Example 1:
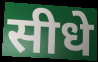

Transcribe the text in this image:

सीधे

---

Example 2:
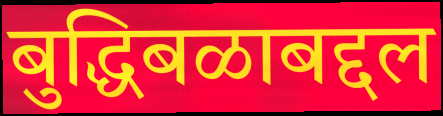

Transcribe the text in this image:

बुद्धिबळाबद्दल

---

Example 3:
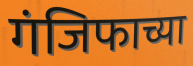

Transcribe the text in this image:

गंजिफाच्या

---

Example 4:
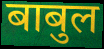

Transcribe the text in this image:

बाबुल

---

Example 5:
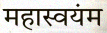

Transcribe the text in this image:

महास्वयंम